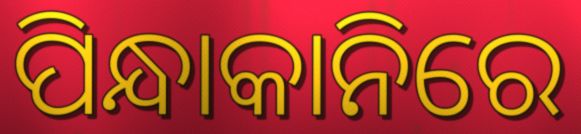
ପିନ୍ଧାକାନିରେ